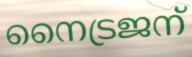
നൈട്രജന്